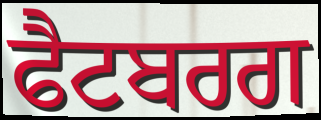
ਫੈਟਬਰਗ